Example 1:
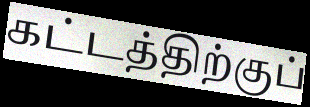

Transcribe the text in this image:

கட்டத்திற்குப்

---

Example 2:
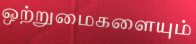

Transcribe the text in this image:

ஒற்றுமைகளையும்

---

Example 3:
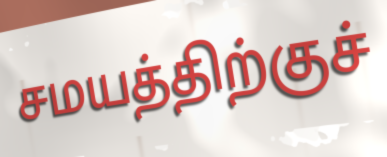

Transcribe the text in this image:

சமயத்திற்குச்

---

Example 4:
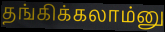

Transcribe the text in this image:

தங்கிக்கலாம்னு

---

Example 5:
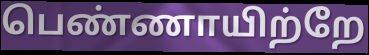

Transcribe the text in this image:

பெண்ணாயிற்றே